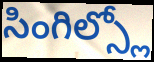
సింగిల్స్లో